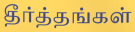
தீர்த்தங்கள்